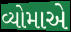
વ્યોમાએ